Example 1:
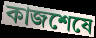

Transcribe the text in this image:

কাজশেষে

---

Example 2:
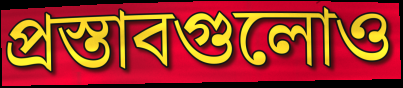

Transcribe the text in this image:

প্রস্তাবগুলোও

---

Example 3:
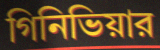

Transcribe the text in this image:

গিনিভিয়ার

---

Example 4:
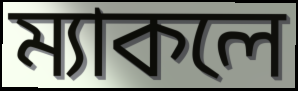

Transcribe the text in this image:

ম্যাকলে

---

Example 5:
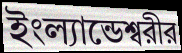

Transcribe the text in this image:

ইংল্যান্ডেশ্বরীর